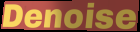
Denoise